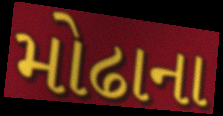
મોઢાના